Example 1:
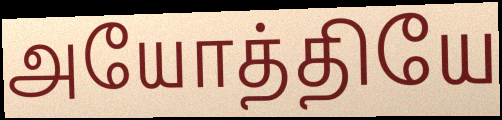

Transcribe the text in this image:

அயோத்தியே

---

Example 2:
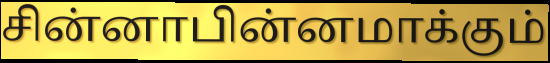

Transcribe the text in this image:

சின்னாபின்னமாக்கும்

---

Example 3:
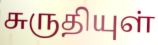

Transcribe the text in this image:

சுருதியுள்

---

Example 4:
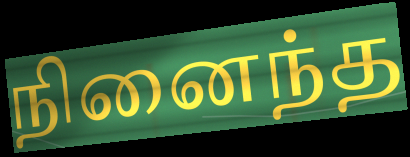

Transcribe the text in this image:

நினைந்த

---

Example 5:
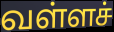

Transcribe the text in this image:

வள்ளச்